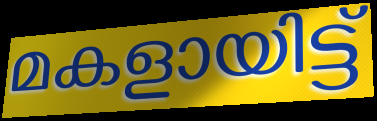
മകളായിട്ട്